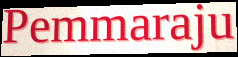
Pemmaraju